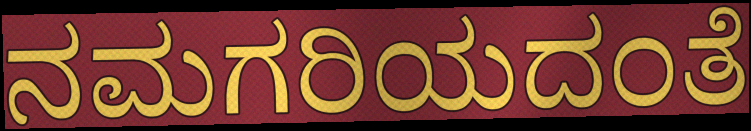
ನಮಗರಿಯದಂತೆ